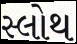
સ્લોથ